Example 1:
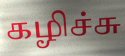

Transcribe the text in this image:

கழிச்சு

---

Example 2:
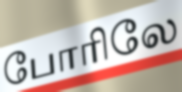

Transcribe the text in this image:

போரிலே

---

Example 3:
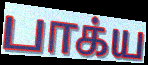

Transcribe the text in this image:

பாக்ய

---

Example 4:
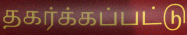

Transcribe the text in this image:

தகர்க்கப்பட்டு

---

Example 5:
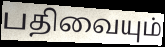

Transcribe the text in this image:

பதிவையும்